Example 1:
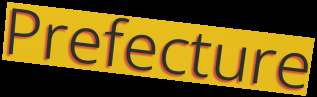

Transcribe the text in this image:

Prefecture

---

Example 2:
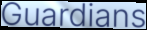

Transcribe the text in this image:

Guardians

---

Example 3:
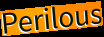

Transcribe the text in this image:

Perilous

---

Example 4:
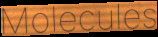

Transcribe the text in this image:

Molecules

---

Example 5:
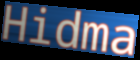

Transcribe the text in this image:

Hidma